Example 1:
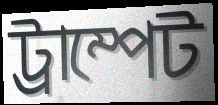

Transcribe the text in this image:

ট্ৰাম্পেট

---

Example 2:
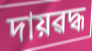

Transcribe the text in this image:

দায়ৱদ্ধ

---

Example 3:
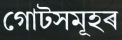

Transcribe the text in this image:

গোটসমূহৰ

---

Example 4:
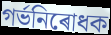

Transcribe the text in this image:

গৰ্ভনিৰোধক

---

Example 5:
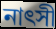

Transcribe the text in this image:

নাৎসী